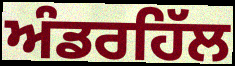
ਅੰਡਰਹਿੱਲ